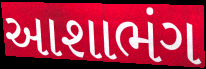
આશાભંગ